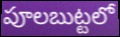
పూలబుట్టలో